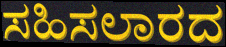
ಸಹಿಸಲಾರದ